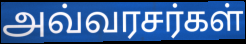
அவ்வரசர்கள்